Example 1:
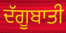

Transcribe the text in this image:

ਦੱਗੂਬਾਤੀ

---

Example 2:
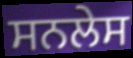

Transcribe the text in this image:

ਸਨਲੇਸ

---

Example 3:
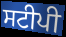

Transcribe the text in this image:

ਸਟੀਪੀ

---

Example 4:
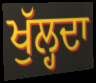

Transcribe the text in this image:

ਖੁੱਲ੍ਹਦਾ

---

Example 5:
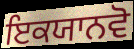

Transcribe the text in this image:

ਇਕਯਾਨਵੋ